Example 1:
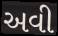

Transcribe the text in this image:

અવી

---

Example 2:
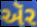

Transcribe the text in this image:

ઍર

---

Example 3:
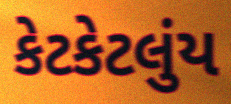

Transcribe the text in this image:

કેટકેટલુંય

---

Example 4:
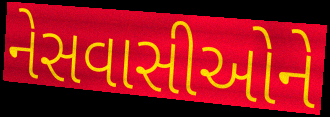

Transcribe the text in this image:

નેસવાસીઓને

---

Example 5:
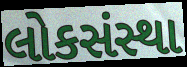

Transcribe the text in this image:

લોકસંસ્થા